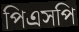
পিএসপি